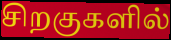
சிறகுகளில்